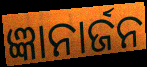
ଜ୍ଞାନାର୍ଜନ